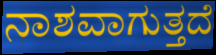
ನಾಶವಾಗುತ್ತದೆ